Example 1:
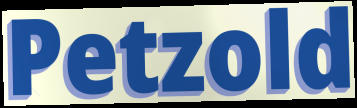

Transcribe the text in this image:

Petzold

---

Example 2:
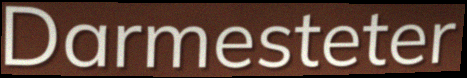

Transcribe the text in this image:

Darmesteter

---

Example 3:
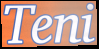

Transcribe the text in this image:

Teni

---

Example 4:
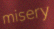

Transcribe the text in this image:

misery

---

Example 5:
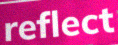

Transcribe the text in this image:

reflect